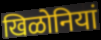
खिळोनियां